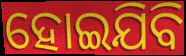
ହୋଇଯିବି